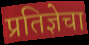
प्रतिज्ञेचा